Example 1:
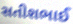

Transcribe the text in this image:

સતીશભાઈ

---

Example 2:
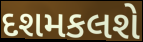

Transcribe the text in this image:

દશમકલશે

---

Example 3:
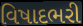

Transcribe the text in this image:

વિષાદભરી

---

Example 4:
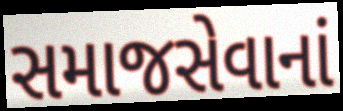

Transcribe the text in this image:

સમાજસેવાનાં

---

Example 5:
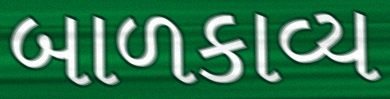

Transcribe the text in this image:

બાળકાવ્ય